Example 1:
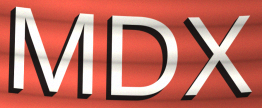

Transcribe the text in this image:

MDX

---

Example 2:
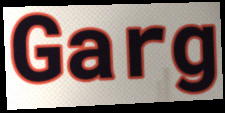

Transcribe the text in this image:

Garg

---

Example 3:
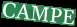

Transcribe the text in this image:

CAMPE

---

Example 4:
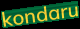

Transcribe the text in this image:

kondaru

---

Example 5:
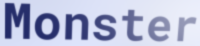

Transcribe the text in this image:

Monster